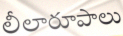
లీలారూపాలు